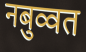
नबुव्वत